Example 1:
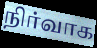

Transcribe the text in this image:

நிர்வாக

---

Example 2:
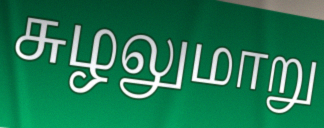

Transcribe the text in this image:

சுழலுமாறு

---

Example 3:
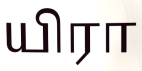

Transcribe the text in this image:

யிரா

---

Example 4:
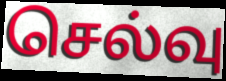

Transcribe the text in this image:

செல்வு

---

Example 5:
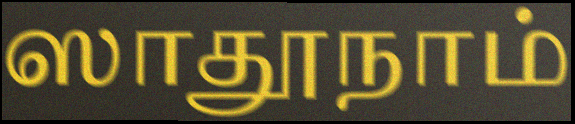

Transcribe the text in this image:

ஸாதூநாம்